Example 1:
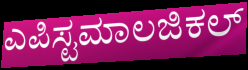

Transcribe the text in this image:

ಎಪಿಸ್ಟಮಾಲಜಿಕಲ್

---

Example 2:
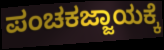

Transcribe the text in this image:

ಪಂಚಕಜ್ಜಾಯಕ್ಕೆ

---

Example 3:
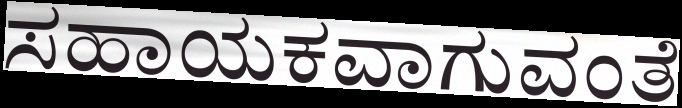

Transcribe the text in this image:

ಸಹಾಯಕವಾಗುವಂತೆ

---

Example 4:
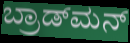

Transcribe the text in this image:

ಬ್ರಾಡ್‌ಮನ್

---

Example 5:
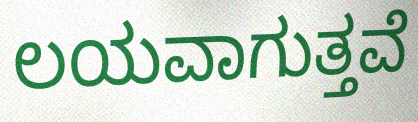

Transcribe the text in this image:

ಲಯವಾಗುತ್ತವೆ